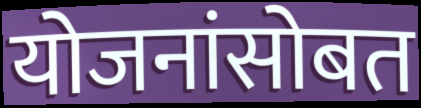
योजनांसोबत